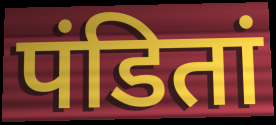
पंडितां